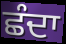
ਛੰਦਾ